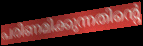
പരിണമിക്കുന്നതിന്റെ